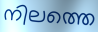
നിലത്തെ